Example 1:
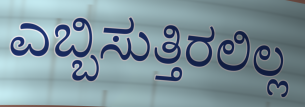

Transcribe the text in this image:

ಎಬ್ಬಿಸುತ್ತಿರಲಿಲ್ಲ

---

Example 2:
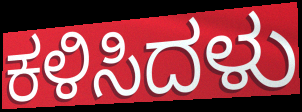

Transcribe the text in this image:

ಕಳಿಸಿದಳು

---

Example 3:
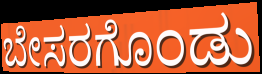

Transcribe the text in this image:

ಬೇಸರಗೊಂಡು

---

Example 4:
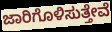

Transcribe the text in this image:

ಜಾರಿಗೊಳಿಸುತ್ತೇವೆ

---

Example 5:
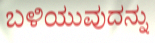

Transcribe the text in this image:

ಬಳಿಯುವುದನ್ನು